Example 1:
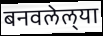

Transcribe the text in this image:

बनवलेल्या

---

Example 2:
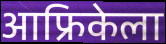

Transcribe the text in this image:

आफ्रिकेला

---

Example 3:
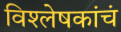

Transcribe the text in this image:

विश्लेषकांचं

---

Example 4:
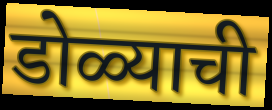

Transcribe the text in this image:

डोळ्याची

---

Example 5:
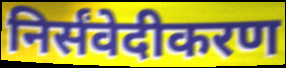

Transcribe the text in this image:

निर्संवेदीकरण